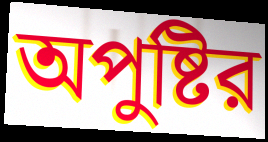
অপুষ্টির